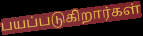
பயப்படுகிறார்கள்